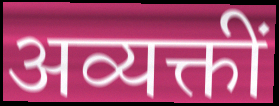
अव्यक्तीं